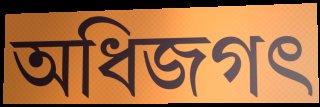
অধিজগৎ